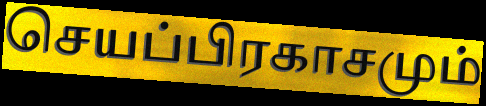
செயப்பிரகாசமும்